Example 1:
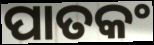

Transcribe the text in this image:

ପାତକଂ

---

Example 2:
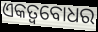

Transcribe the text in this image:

ଏକତ୍ୱବୋଧର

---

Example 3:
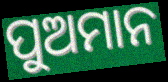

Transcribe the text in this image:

ପୁଅମାନ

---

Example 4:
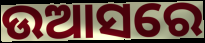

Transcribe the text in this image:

ଉଆସରେ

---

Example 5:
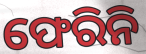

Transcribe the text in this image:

ଫେରିନି